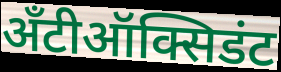
अँटीऑक्सिडंट